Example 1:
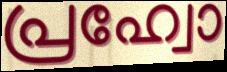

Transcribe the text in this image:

പ്രഹ്വോ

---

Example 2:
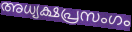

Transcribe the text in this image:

അധ്യക്ഷപ്രസംഗം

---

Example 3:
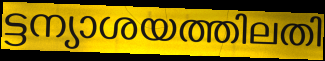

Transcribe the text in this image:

ട്ടന്യാശയത്തിലതി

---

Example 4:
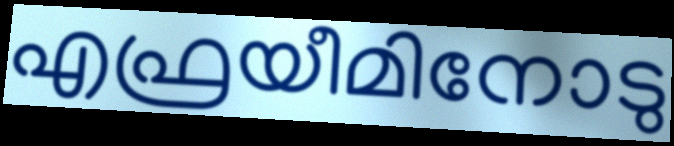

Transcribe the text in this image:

എഫ്രയീമിനോടു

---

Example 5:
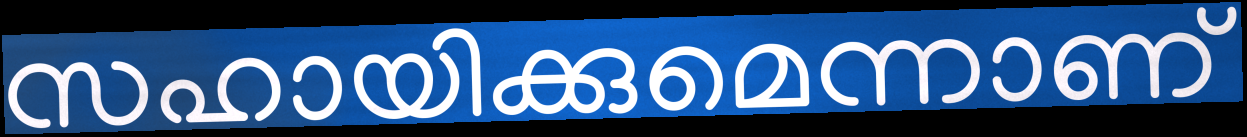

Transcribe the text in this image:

സഹായിക്കുമെന്നാണ്